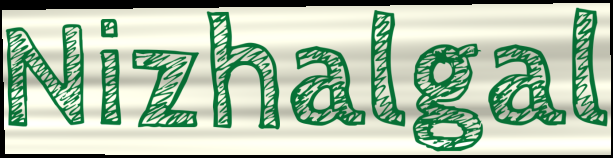
Nizhalgal